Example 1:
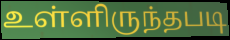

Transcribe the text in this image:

உள்ளிருந்தபடி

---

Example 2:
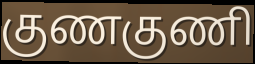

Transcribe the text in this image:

குணகுணி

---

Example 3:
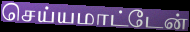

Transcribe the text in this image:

செய்யமாட்டேன்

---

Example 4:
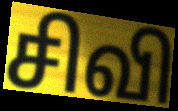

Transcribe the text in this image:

சிவி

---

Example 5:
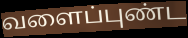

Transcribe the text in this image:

வளைப்புண்ட